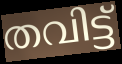
തവിട്ട്